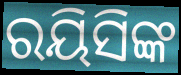
ରୟିସିଙ୍କ